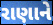
રાણાને